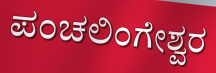
ಪಂಚಲಿಂಗೇಶ್ವರ